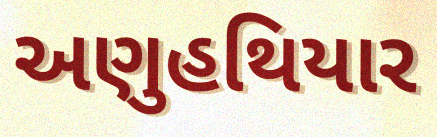
અણુહથિયાર